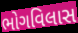
ભોગવિલાસ